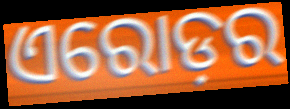
ଏରୋଡ଼ର